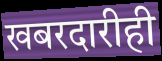
खबरदारीही